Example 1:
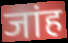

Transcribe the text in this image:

जांह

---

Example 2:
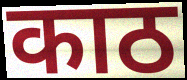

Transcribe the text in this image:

काठ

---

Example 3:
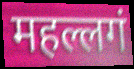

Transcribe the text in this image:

महल्लगं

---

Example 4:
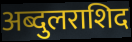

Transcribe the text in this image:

अब्दुलराशिद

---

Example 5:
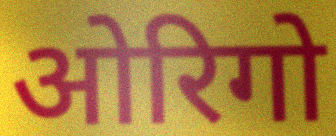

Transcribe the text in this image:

ओरिगो